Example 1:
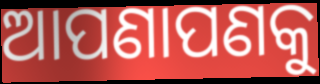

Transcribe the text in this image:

ଆପଣାପଣକୁ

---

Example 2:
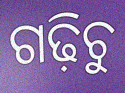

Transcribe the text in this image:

ଗଢ଼ିଚୁ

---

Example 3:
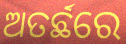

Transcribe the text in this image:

ଅତର୍ଛରେ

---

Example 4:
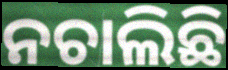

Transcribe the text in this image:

ନଚାଲିଛି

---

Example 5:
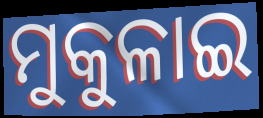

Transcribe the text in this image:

ମୁକୁଳାଇ